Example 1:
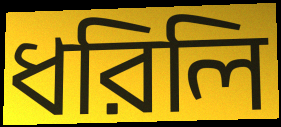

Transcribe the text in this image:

ধরিলি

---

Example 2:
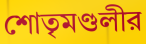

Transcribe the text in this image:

শোতৃমণ্ডলীর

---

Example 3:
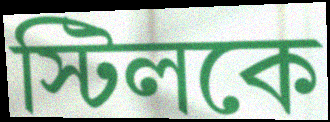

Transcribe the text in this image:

স্টিলকে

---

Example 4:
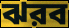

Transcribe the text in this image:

ঝরব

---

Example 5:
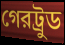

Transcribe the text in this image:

গেরট্রুড